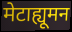
मेटाह्यूमन